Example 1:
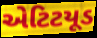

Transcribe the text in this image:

એટિટયૂડ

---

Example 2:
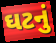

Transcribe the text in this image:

ઘટનું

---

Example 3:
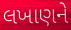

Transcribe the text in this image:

લખાણને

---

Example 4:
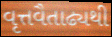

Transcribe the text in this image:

વૃત્તવૈતાઢ્યથી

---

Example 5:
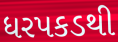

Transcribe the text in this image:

ધરપકડથી